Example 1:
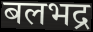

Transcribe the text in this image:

बलभद्र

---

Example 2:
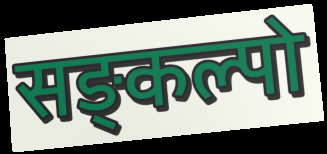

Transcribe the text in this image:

सङ्कल्पो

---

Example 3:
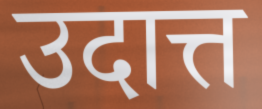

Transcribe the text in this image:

उदात्त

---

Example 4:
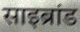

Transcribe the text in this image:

साइब्रांड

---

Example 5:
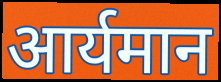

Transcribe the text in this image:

आर्यमान